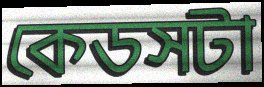
কেডসটা